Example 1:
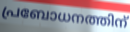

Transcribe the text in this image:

പ്രബോധനത്തിന്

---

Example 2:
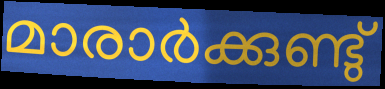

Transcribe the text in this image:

മാരാർക്കുണ്ടു്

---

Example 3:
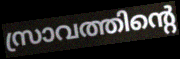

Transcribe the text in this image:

സ്രാവത്തിന്റെ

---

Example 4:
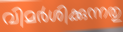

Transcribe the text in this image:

വിമർശിക്കുന്നതു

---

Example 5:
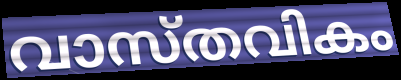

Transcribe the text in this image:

വാസ്തവികം